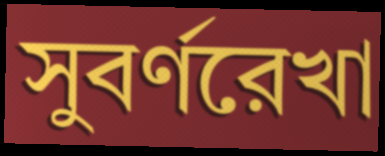
সুবর্ণরেখা